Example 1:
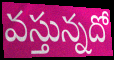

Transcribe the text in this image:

వస్తున్నదో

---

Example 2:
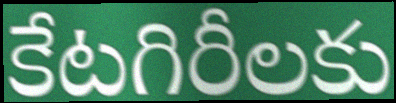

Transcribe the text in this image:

కేటగిరీలకు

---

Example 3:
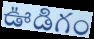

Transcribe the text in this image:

ఊడిగం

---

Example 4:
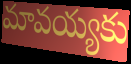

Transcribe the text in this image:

మావయ్యకు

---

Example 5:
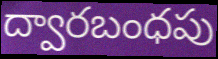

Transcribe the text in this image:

ద్వారబంధపు